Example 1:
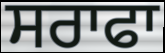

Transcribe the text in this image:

ਸਰਾਫਾ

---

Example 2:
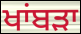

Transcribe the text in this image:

ਖਾਂਬੜਾ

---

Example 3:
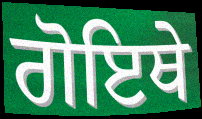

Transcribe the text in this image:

ਗੋਇਥੇ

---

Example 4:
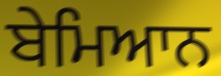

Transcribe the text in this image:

ਬੇਮਿਆਨ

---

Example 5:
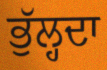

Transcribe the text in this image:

ਭੁੱਲ੍ਹਦਾ